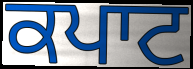
ਕਪਾਟ